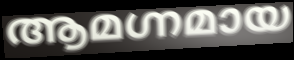
ആമഗ്നമായ